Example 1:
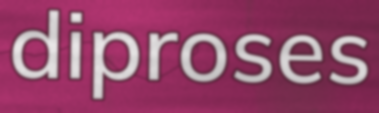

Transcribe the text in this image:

diproses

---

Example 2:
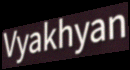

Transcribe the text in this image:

Vyakhyan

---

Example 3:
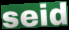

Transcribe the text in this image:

seid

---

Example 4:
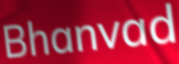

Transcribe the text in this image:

Bhanvad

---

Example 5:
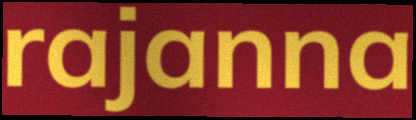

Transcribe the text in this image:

rajanna